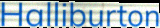
Halliburton